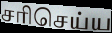
சரிசெய்ய